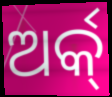
ଅର୍କ୍